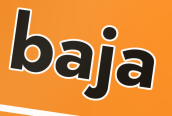
baja